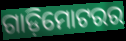
ଗାଡ଼ିମୋଟରର